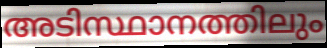
അടിസ്ഥാനത്തിലും